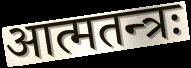
आत्मतन्त्रः